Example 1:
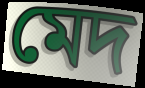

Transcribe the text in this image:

মেদ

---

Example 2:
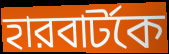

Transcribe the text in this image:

হারবার্টকে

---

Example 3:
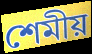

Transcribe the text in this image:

শেমীয়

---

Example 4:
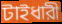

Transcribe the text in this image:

টাইধারী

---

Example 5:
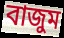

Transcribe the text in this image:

বাজুম